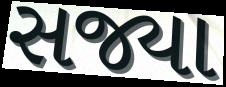
સજ્યા